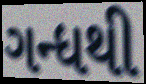
ગન્ધથી